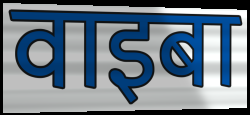
वाइबा